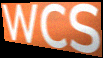
WCS